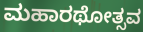
ಮಹಾರಥೋತ್ಸವ